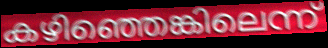
കഴിഞ്ഞെങ്കിലെന്ന്